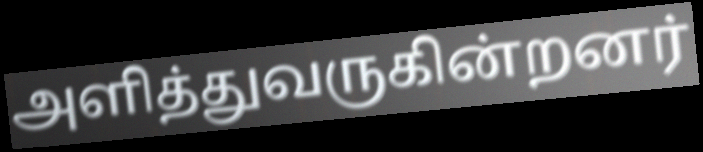
அளித்துவருகின்றனர்